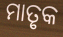
ମାତୃକ